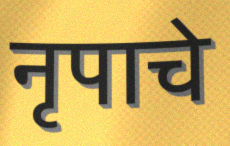
नृपाचे